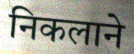
निकलाने